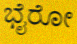
ಭೈರೋ